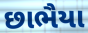
છાભૈયા